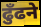
ढुँढने